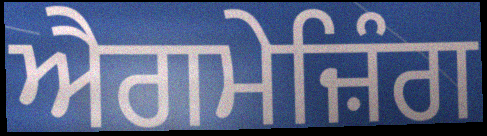
ਐਗਮੇਜ਼ਿੰਗ